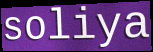
soliya